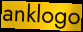
anklogo